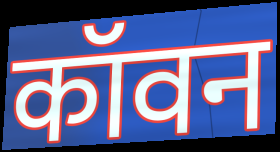
कॉवन